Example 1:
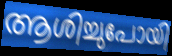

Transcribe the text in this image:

ആശിച്ചുപോയി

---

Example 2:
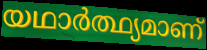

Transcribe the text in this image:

യഥാർത്ഥ്യമാണ്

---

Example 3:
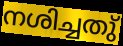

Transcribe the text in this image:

നശിച്ചതു്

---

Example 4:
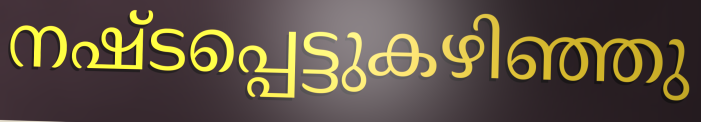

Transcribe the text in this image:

നഷ്ടപ്പെട്ടുകഴിഞ്ഞു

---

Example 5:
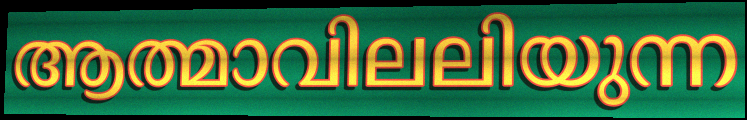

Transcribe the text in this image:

ആത്മാവിലലിയുന്ന